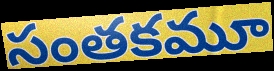
సంతకమూ